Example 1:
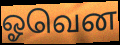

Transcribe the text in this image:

ஓவென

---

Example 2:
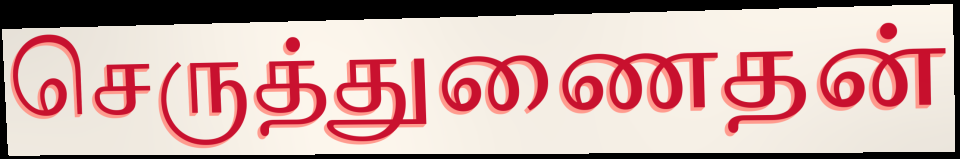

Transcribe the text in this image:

செருத்துணைதன்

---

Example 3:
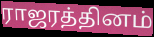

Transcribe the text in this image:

ராஜரத்தினம்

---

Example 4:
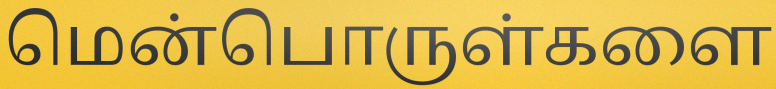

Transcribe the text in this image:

மென்பொருள்களை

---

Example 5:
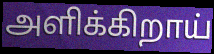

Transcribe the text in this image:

அளிக்கிறாய்